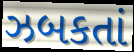
ઝબકતાં